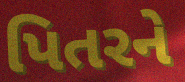
પિતરને